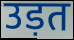
उड़त